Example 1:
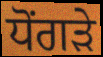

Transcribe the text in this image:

ਧੋਂਗੜੇ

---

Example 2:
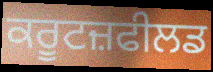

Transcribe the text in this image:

ਕਰੂਟਜ਼ਫੀਲਡ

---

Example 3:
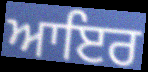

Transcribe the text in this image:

ਆਇਰ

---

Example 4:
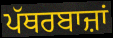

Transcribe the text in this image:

ਪੱਥਰਬਾਜ਼ਾਂ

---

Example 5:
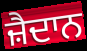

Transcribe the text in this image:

ਜ਼ੈਦਾਨ